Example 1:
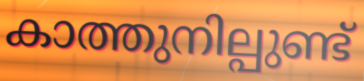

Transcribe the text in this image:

കാത്തുനില്പുണ്ട്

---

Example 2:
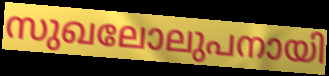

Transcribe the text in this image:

സുഖലോലുപനായി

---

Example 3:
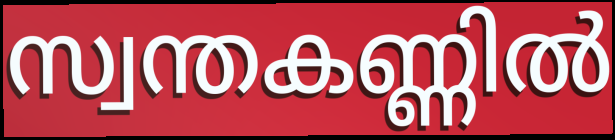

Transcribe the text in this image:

സ്വന്തകണ്ണിൽ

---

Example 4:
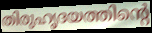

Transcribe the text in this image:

തിരുഹൃദയത്തിന്റെ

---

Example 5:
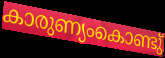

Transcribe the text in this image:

കാരുണ്യംകൊണ്ടു്